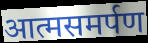
आत्‍मसमर्पण